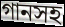
গানসহ